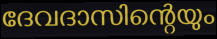
ദേവദാസിന്റെയും